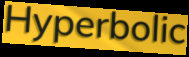
Hyperbolic